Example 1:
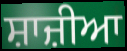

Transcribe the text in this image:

ਸ਼ਾਜ਼ੀਆ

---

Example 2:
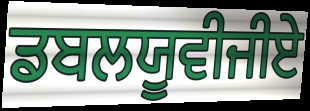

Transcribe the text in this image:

ਡਬਲਯੂਵੀਜੀਏ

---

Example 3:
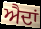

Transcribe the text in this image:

ਐਦਾਂ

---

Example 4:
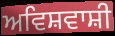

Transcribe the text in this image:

ਅਵਿਸ਼ਵਾਸ਼ੀ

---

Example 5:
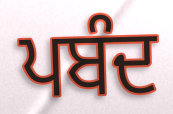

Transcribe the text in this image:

ਪਬੰਦ